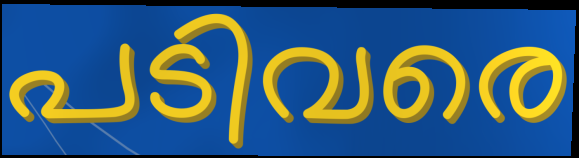
പടിവരെ